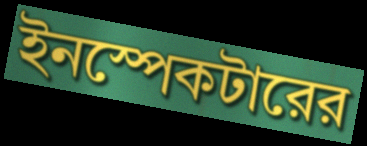
ইনস্পেকটারের